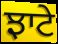
ਝਾਟੇ